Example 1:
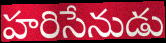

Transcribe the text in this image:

హరిసేనుడు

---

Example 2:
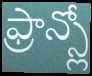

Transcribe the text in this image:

ఫ్రాన్స్లో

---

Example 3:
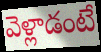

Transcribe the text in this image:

వెళ్లాడంటే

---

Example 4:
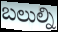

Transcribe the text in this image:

బలుల్ని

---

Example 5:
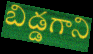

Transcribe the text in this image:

బిడ్డగాని